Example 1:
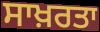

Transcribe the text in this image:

ਸਾਖ਼ਰਤਾ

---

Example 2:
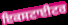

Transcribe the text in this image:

ਇਕਸਟਾਈਟਰ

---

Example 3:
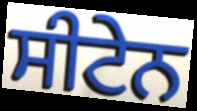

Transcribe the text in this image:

ਸੀਟੇਨ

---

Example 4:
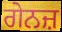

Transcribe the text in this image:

ਗੇਨਜ਼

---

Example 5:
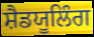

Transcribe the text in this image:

ਸ਼ੈਡਯੂਲਿੰਗ